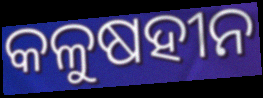
କଳୁଷହୀନ